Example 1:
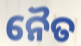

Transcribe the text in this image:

ନୈତ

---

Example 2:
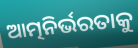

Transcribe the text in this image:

ଆତ୍ମନିର୍ଭରତାକୁ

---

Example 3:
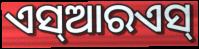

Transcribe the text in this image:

ଏସ୍ଆରଏସ୍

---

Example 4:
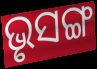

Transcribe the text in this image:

ଭୃସଙ୍ଗ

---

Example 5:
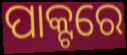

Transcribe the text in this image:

ପାକ୍ଟରେ